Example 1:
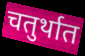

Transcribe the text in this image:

चतुर्थात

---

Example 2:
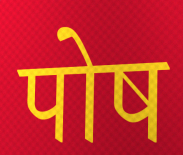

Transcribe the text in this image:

पोष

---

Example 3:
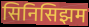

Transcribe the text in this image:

सिनिसिझम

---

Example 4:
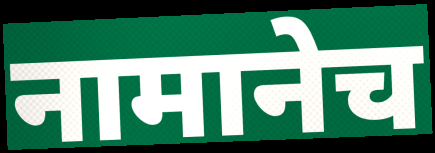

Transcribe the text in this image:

नामानेच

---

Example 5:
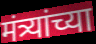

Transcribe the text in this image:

मंत्र्यांच्या